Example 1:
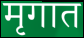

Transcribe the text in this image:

मृगात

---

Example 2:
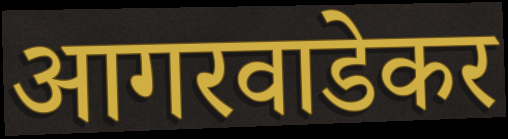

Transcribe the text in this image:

आगरवाडेकर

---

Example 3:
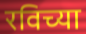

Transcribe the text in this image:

रविच्या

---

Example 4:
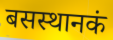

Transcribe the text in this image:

बसस्थानकं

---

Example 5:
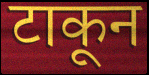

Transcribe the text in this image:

टाकून